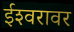
ईश्‍वरावर